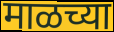
माळच्या